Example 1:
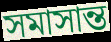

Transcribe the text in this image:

সমাসান্ত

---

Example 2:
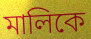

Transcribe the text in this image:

মালিকে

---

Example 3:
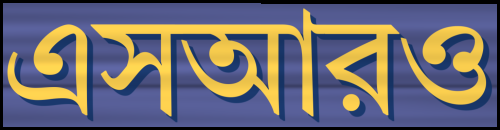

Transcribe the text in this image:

এসআরও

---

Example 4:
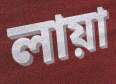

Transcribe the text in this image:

লায়া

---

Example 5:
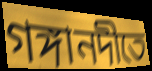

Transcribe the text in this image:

গঙ্গানদীতে